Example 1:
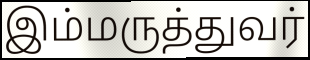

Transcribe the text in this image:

இம்மருத்துவர்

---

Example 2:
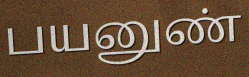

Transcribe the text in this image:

பயனுண்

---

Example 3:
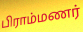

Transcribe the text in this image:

பிராம்மணர்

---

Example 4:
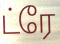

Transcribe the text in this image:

ட்ரே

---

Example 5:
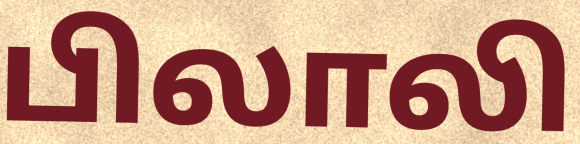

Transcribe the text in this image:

பிலாலி